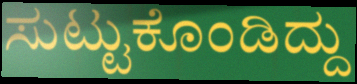
ಸುಟ್ಟುಕೊಂಡಿದ್ದು